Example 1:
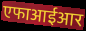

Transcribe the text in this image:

एफाआईआर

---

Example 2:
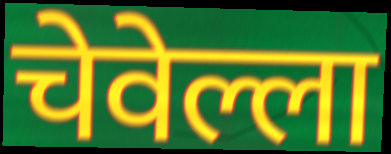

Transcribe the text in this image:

चेवेल्ला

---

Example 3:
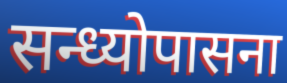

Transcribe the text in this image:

सन्ध्योपासना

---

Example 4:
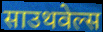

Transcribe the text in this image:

साउथवेल्स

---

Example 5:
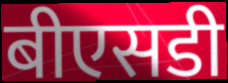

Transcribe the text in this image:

बीएसडी